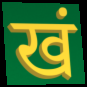
खं